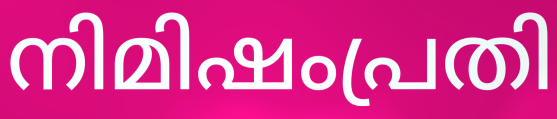
നിമിഷംപ്രതി